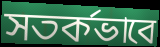
সতর্কভাবে